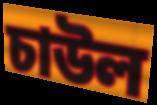
চাউল